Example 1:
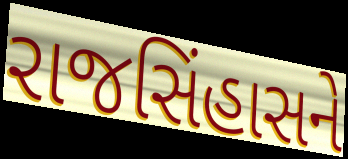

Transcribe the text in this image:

રાજસિંહાસને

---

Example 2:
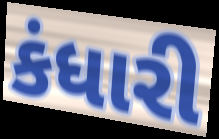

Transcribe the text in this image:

કંધારી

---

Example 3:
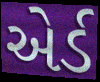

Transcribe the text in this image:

એર્ડ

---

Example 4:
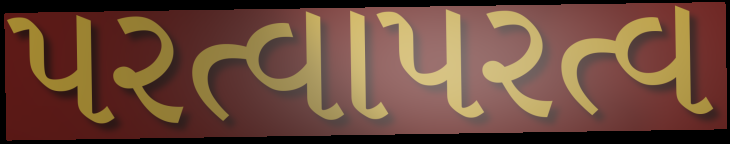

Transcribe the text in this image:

પરત્વાપરત્વ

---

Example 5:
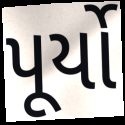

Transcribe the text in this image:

પૂર્યો